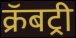
क्रॅबट्री